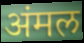
अंमल